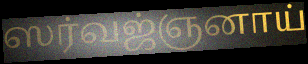
ஸர்வஜ்ஞனாய்